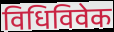
विधिविवेक